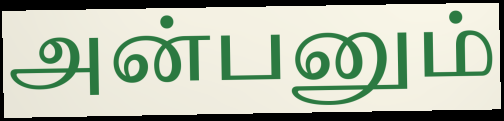
அன்பனும்